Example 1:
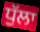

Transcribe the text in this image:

ਧੁੱਲਾ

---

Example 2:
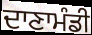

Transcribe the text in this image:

ਦਾਣਾਮੰਡੀ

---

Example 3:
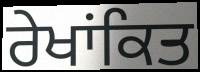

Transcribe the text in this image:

ਰੇਖਾਂਕਿਤ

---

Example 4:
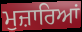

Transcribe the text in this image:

ਮੁਜ਼ਾਰਿਆਂ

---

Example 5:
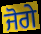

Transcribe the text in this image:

ਜੋਗੇ